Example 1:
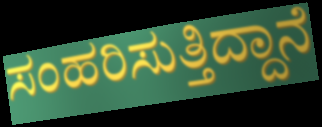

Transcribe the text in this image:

ಸಂಹರಿಸುತ್ತಿದ್ದಾನೆ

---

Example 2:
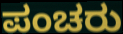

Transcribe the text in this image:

ಪಂಚರು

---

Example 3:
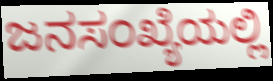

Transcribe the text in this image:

ಜನಸಂಖ್ಯೆಯಲ್ಲಿ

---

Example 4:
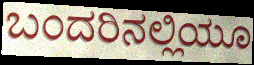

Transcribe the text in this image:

ಬಂದರಿನಲ್ಲಿಯೂ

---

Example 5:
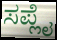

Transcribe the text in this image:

ಸಪ್ಲೈ